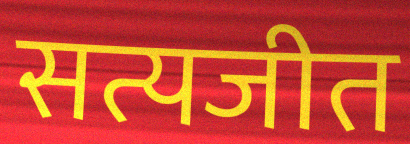
सत्यजीत